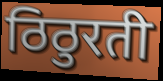
ठिठुरती